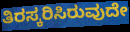
ತಿರಸ್ಕರಿಸಿರುವುದೇ